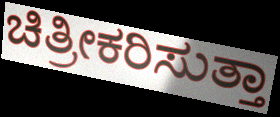
ಚಿತ್ರೀಕರಿಸುತ್ತಾ